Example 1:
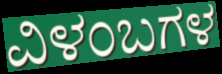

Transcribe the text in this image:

ವಿಳಂಬಗಳ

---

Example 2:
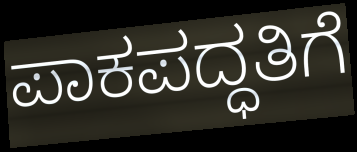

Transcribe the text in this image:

ಪಾಕಪದ್ಧತಿಗೆ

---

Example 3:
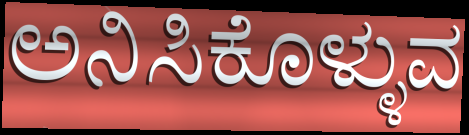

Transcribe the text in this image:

ಅನಿಸಿಕೊಳ್ಳುವ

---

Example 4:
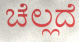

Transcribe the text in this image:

ಚೆಲ್ಲದೆ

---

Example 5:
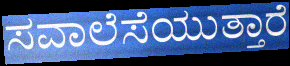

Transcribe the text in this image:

ಸವಾಲೆಸೆಯುತ್ತಾರೆ